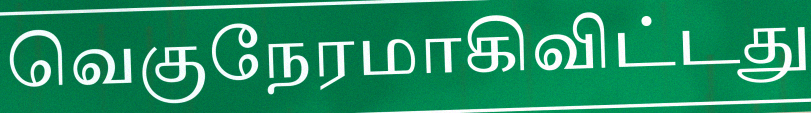
வெகுநேரமாகிவிட்டது